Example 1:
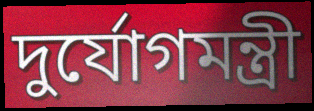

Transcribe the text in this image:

দুর্যোগমন্ত্রী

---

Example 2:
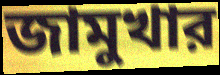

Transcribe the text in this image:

জামুখার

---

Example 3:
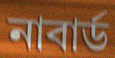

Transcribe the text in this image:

নাবার্ড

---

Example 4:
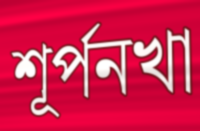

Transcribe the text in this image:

শূর্পনখা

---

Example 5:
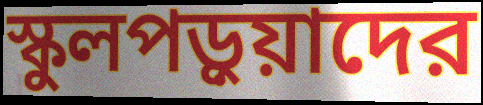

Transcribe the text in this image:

স্কুলপড়ুয়াদের